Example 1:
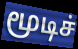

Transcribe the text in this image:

மூடிச்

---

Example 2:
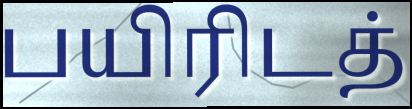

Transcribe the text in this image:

பயிரிடத்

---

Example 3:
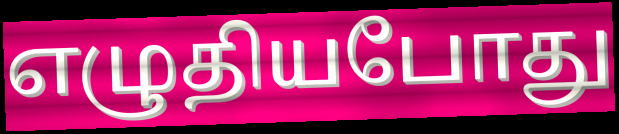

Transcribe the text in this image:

எழுதியபோது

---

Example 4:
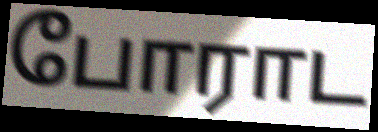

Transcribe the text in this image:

போராட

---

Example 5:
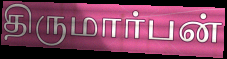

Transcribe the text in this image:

திருமார்பன்